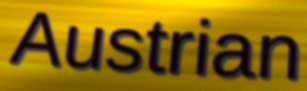
Austrian